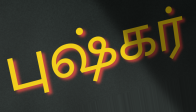
புஷ்கர்